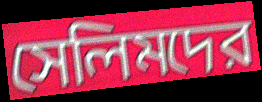
সেলিমদের